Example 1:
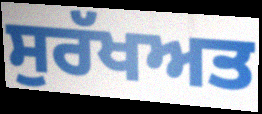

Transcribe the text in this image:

ਸੁਰੱਖਅਤ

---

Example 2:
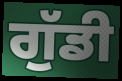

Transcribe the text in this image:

ਗੁੱਡੀ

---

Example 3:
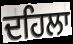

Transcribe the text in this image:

ਦਹਿਲਾ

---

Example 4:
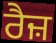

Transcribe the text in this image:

ਰੈਜ਼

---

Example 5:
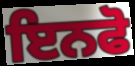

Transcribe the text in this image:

ਇਨਫੋ